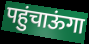
पहुंचाऊंगा